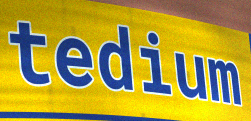
tedium